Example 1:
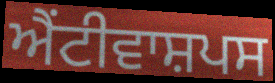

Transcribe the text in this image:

ਐਂਟੀਵਾਸ਼ਪਸ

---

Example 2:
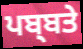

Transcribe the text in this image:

ਪਬ੍ਬਤੇ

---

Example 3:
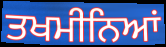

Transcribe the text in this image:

ਤਖਮੀਨਿਆਂ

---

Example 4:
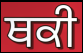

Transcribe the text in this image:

ਥਕੀ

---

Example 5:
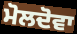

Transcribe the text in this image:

ਮੋਲਦੋਵਾ